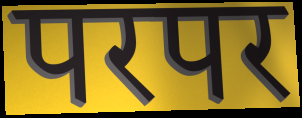
परपर